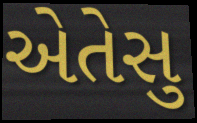
એતેસુ